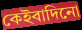
কেইবাদিনো